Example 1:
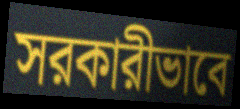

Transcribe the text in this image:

সরকারীভাবে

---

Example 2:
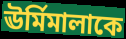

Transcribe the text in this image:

ঊর্মিমালাকে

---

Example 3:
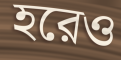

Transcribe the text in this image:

হরেও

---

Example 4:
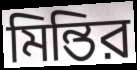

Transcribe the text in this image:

মিন্তির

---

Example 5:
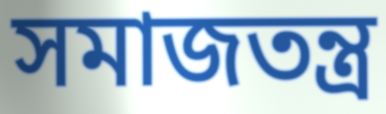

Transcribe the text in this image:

সমাজতন্ত্র